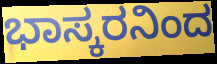
ಭಾಸ್ಕರನಿಂದ